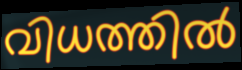
വിധത്തിൽ